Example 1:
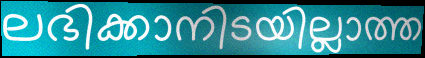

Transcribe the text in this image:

ലഭിക്കാനിടയില്ലാത്ത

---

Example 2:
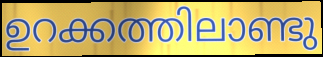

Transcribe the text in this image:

ഉറക്കത്തിലാണ്ടു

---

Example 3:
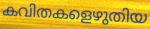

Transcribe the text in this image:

കവിതകളെഴുതിയ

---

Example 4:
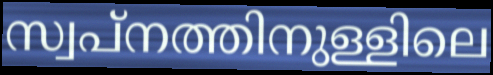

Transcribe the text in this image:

സ്വപ്നത്തിനുള്ളിലെ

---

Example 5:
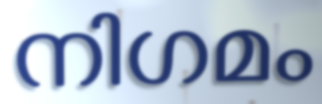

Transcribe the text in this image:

നിഗമം